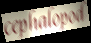
cephalopod